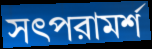
সৎপরামর্শ